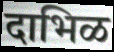
दाभिळ